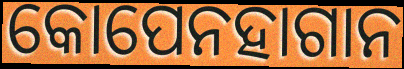
କୋପେନହାଗାନ